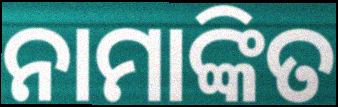
ନାମାଙ୍କିତ